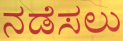
ನಡೆಸಲು